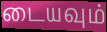
டையவும்